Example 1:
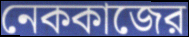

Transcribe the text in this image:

নেককাজের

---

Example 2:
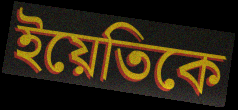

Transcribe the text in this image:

ইয়েতিকে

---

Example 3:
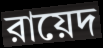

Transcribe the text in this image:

রায়েদ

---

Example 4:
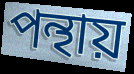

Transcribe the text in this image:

পন্থায়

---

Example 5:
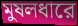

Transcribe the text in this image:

মুষলধারে